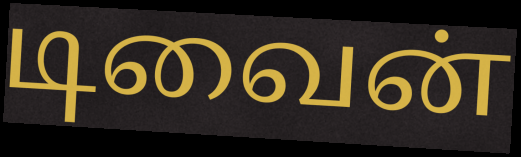
டிவைன்